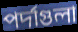
পর্দাগুলা